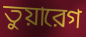
তুয়ারেগ